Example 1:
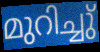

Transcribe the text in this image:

മുറിച്ചു്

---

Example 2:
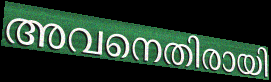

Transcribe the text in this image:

അവനെതിരായി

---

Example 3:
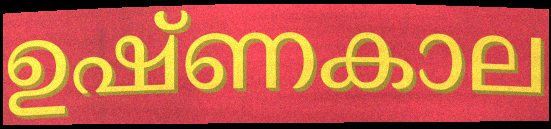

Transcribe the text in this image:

ഉഷ്ണകാല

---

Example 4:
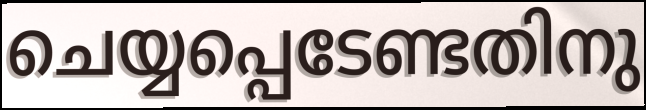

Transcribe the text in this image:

ചെയ്യപ്പെടേണ്ടതിനു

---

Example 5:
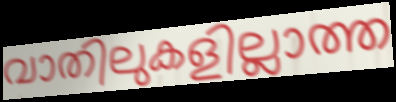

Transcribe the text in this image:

വാതിലുകളില്ലാത്ത